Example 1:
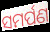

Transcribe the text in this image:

ସମର୍ପଣ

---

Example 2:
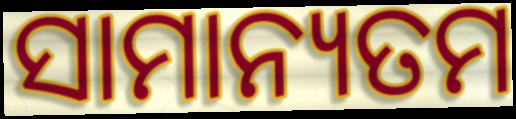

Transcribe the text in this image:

ସାମାନ୍ୟତମ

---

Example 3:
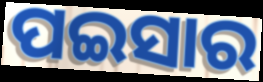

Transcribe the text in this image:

ପଇସାର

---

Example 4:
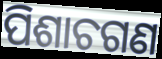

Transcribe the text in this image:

ପିଶାଚଗଣ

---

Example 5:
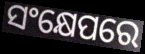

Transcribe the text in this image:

ସଂକ୍ଷେପରେ